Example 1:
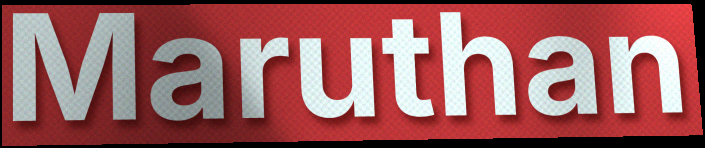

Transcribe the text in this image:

Maruthan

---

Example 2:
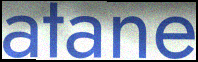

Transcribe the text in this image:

atane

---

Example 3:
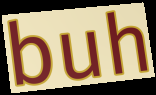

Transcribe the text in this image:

buh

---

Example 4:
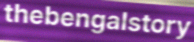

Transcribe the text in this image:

thebengalstory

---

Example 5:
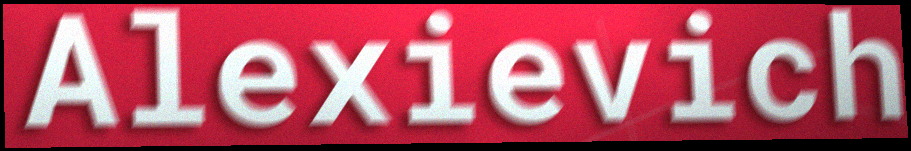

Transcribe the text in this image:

Alexievich